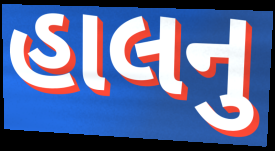
હાલનુ